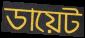
ডায়েট